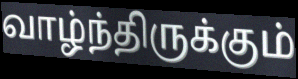
வாழ்ந்திருக்கும்